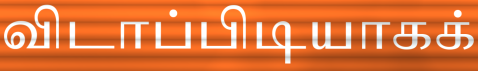
விடாப்பிடியாகக்